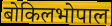
बोकिलभोपाल